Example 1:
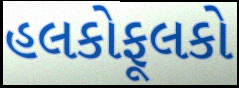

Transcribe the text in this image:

હલકોફૂલકો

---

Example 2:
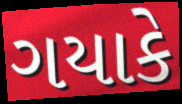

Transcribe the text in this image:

ગયાકે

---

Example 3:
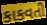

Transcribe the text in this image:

કાકવતી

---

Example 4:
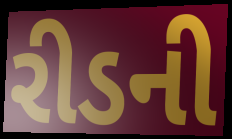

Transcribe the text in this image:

રીડની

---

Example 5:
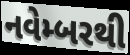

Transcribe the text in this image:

નવેમ્બરથી